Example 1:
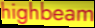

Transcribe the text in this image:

highbeam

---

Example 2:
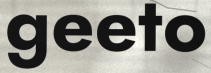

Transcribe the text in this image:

geeto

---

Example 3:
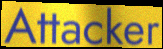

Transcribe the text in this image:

Attacker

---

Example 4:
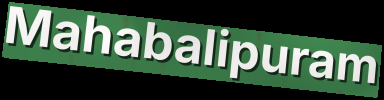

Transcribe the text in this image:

Mahabalipuram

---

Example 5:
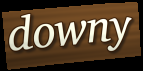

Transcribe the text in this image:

downy